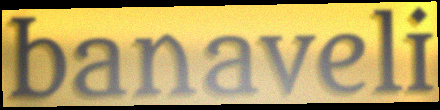
banaveli